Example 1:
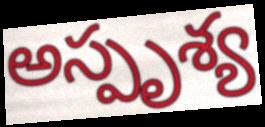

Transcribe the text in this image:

అస్పృశ్య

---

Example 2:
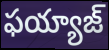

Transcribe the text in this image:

ఫయ్యాజ్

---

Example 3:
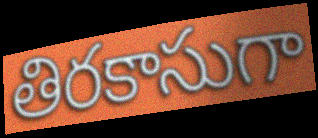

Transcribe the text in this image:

తిరకాసుగా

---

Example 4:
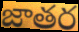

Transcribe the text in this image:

జాతర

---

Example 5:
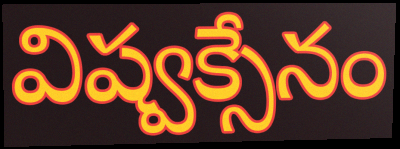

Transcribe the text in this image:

విష్వక్సేనం